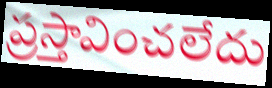
ప్రస్తావించలేదు